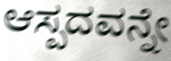
ಆಸ್ಪದವನ್ನೇ